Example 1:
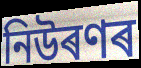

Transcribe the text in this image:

নিউৰণৰ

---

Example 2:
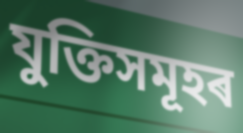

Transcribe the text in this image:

যুক্তিসমূহৰ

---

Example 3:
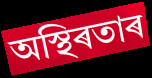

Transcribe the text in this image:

অস্থিৰতাৰ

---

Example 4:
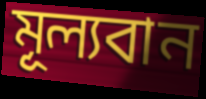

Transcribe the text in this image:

মূল্যবান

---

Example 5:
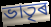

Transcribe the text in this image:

ভাতৃৰ